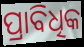
ପ୍ରାବିଧିକ